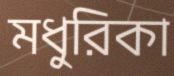
মধুরিকা